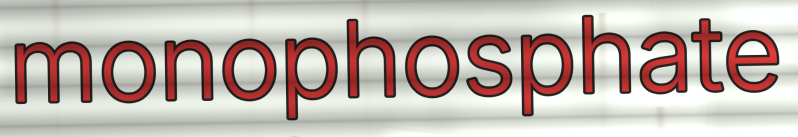
monophosphate